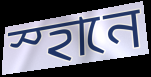
স্হানে